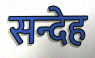
सन्देह